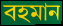
বহমান